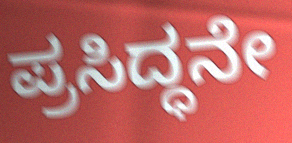
ಪ್ರಸಿದ್ಧನೇ